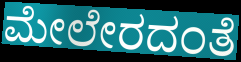
ಮೇಲೇರದಂತೆ